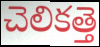
చెలికత్తె